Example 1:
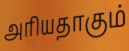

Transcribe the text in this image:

அரியதாகும்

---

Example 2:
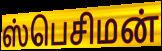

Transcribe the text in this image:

ஸ்பெசிமன்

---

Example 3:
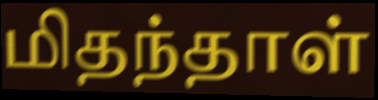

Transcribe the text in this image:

மிதந்தாள்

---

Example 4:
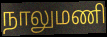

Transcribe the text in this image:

நாலுமணி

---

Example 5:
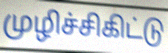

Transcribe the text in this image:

முழிச்சிகிட்டு